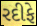
રદીફે